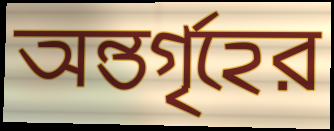
অন্তর্গৃহের